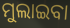
ମୁଲାଇବା